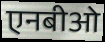
एनबीओ